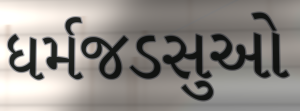
ધર્મજડસુઓ